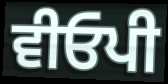
ਵੀਓਪੀ